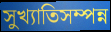
সুখ্যাতিসম্পন্ন